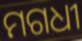
ମଗଧୀ